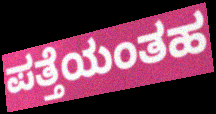
ಪತ್ತೆಯಂತಹ